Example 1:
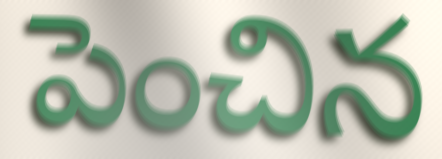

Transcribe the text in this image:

పెంచిన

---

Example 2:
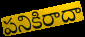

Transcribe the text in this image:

పనికిరాదా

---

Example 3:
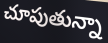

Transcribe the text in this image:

చూపుతున్నా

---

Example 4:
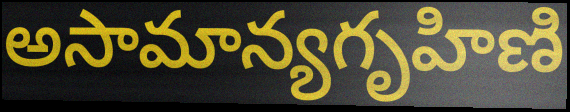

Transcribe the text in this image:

అసామాన్యగృహిణి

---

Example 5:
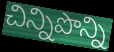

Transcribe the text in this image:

చిన్నిపొన్ని